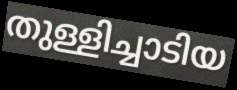
തുള്ളിച്ചാടിയ